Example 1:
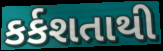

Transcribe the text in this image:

કર્કશતાથી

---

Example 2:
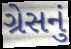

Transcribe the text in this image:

ગ્રેસનું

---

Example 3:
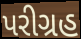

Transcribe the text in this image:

પરીગ્રહ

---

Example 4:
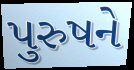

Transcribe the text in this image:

પુરુષને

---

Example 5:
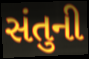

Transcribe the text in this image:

સંતુની